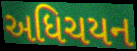
અધિચયન